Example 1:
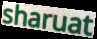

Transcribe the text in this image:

sharuat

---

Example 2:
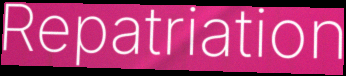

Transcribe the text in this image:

Repatriation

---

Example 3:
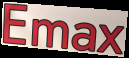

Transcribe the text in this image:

Emax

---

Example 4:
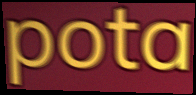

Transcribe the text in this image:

pota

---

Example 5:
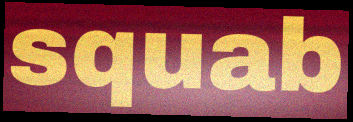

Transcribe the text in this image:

squab